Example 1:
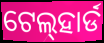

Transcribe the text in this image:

ଟେଲ୍‍ହାର୍ଡ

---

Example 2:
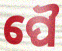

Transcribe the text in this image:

ପୈ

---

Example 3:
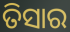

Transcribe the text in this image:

ତିସାର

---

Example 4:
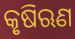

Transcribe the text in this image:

କୃଷିଋଣ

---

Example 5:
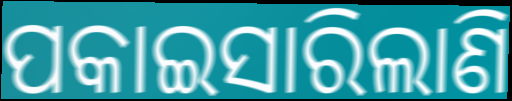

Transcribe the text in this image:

ପକାଇସାରିଲାଣି